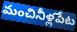
మంచినీళ్లపేట